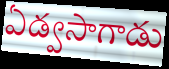
ఏడ్వసాగాడు